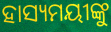
ହାସ୍ୟମୟୀଙ୍କୁ